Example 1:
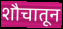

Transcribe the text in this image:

शौचातून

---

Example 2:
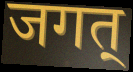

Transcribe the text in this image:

जगत्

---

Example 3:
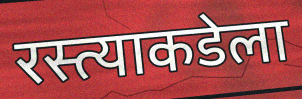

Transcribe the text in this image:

रस्त्याकडेला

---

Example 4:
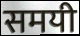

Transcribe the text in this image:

समयी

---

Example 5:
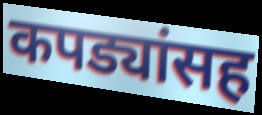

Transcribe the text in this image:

कपड्यांसह